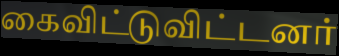
கைவிட்டுவிட்டனர்